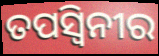
ତପସ୍ୱିନୀର